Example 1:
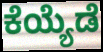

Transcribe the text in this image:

ಕೆಯ್ಯೆಡೆ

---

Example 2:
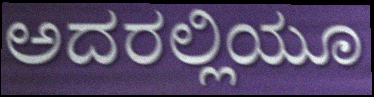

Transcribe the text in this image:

ಅದರಲ್ಲಿಯೂ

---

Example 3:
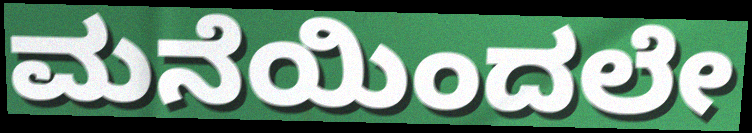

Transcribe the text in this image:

ಮನೆಯಿಂದಲೇ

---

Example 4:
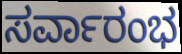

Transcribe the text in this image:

ಸರ್ವಾರಂಭ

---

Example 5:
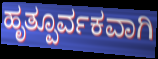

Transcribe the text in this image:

ಹೃತ್ಪೂರ್ವಕವಾಗಿ